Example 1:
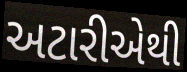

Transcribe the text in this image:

અટારીએથી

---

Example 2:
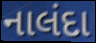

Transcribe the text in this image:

નાલંદા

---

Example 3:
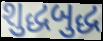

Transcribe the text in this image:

શુદ્ધબુદ્ધ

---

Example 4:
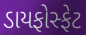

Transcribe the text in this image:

ડાયફોસ્ફેટ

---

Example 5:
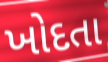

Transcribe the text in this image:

ખોદતા